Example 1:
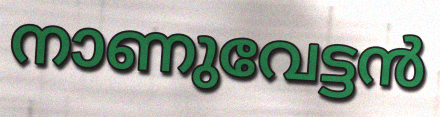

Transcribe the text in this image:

നാണുവേട്ടൻ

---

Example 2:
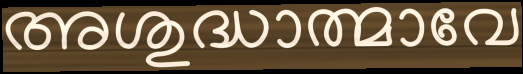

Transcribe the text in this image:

അശുദ്ധാത്മാവേ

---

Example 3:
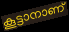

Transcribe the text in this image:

കൂട്ടാനാണ്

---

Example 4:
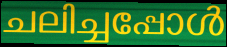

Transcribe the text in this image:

ചലിച്ചപ്പോൾ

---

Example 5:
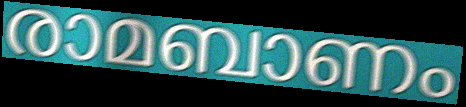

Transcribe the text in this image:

രാമബാണം